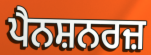
ਪੈਨਸ਼ਨਰਜ਼